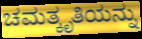
ಚಮತ್ಕೃತಿಯನ್ನು